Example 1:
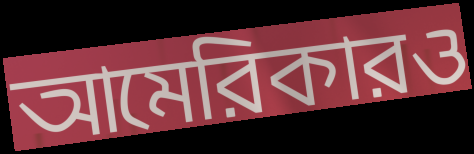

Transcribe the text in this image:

আমেরিকারও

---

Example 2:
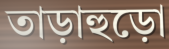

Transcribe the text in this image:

তাড়াহুড়ো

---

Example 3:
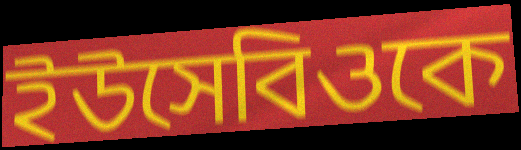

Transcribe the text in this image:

ইউসেবিওকে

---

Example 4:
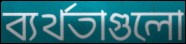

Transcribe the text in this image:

ব্যর্থতাগুলো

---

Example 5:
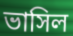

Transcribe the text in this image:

ভাসিল